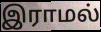
இராமல்